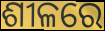
ଶୀଳରେ